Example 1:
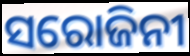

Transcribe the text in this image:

ସରୋଜିନୀ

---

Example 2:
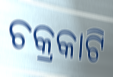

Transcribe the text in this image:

ଚକ୍ରକାଟି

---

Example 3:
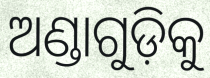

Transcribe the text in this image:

ଅଣ୍ଡାଗୁଡ଼ିକୁ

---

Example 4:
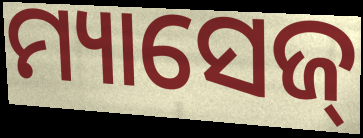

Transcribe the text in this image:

ମ୍ୟାସେଜ୍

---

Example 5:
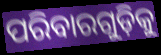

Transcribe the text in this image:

ପରିବାରଗୁଡ଼ିକୁ